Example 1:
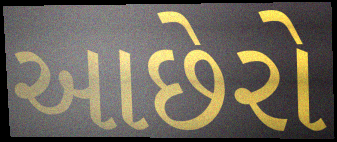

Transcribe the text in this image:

આછેરો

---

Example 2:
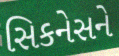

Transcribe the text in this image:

સિકનેસને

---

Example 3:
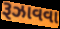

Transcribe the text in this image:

રૂઝાવવા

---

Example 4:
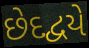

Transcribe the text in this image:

છેદદ્વયે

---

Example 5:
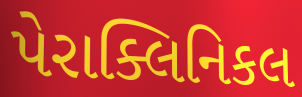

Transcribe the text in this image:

પેરાક્લિનિકલ